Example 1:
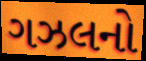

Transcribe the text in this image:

ગઝલનો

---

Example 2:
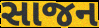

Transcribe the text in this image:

સાજન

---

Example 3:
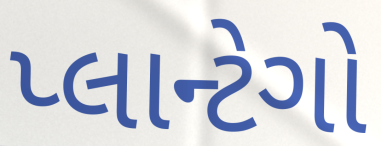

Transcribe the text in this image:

પ્લાન્ટેગો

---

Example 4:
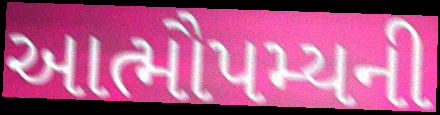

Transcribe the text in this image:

આત્મૌપમ્યની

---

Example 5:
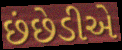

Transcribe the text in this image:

છંછેડીએ